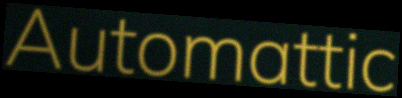
Automattic